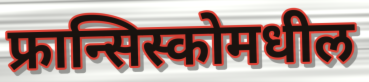
फ्रान्सिस्कोमधील